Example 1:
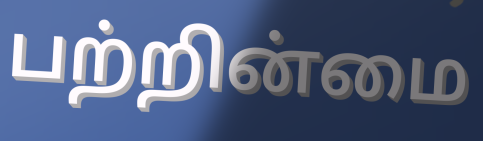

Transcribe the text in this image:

பற்றின்மை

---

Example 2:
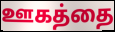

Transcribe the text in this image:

ஊகத்தை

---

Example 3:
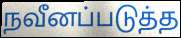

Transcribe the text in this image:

நவீனப்படுத்த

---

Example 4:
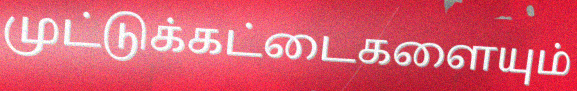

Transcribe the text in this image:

முட்டுக்கட்டைகளையும்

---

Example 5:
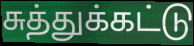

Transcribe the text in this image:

சுத்துக்கட்டு